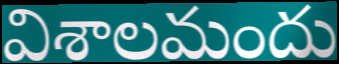
విశాలమందు